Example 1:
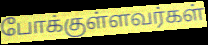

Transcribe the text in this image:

போக்குள்ளவர்கள்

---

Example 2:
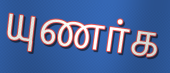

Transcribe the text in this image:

யுணர்க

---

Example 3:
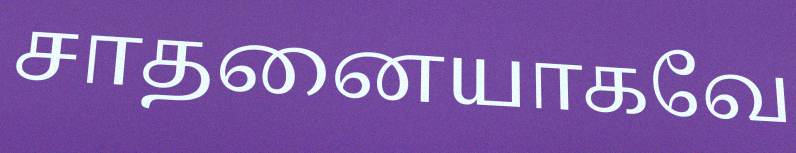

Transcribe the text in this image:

சாதனையாகவே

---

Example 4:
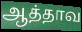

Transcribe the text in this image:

ஆத்தாவ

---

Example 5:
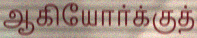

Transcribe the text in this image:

ஆகியோர்க்குத்